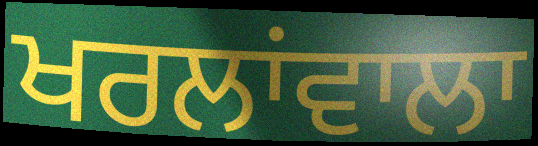
ਖਰਲਾਂਵਾਲਾ